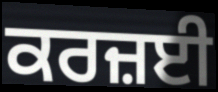
ਕਰਜ਼ਈ